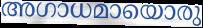
അഗാധമായൊരു